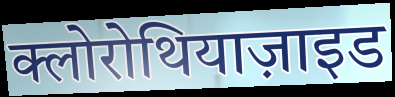
क्लोरोथियाज़ाइड